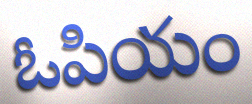
ఓపియం